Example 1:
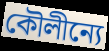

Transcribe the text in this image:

কৌলীন্যে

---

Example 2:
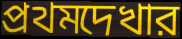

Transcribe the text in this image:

প্রথমদেখার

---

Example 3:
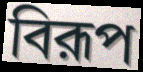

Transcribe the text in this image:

বিরূপ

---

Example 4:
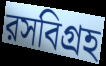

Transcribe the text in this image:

রসবিগ্রহ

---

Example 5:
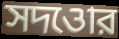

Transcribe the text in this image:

সদওোর